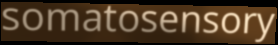
somatosensory